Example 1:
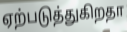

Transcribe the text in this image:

ஏற்படுத்துகிறதா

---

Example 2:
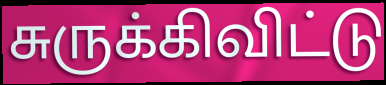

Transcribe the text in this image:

சுருக்கிவிட்டு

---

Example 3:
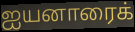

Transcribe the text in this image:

ஐயனாரைக்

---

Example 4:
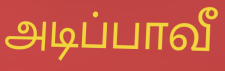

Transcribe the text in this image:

அடிப்பாவீ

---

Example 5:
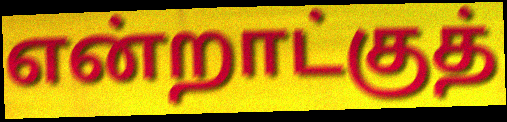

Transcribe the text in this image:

என்றாட்குத்